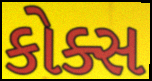
કોક્સ